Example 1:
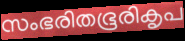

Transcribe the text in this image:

സംഭരിതഭൂരികൃപ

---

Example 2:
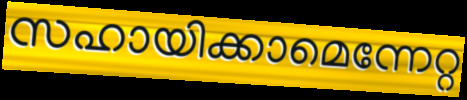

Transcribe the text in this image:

സഹായിക്കാമെന്നേറ്റ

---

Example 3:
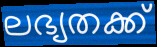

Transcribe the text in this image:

ലഭ്യതക്ക്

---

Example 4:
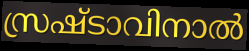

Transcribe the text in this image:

സ്രഷ്ടാവിനാൽ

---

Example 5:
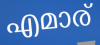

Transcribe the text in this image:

എമാര്